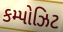
કમ્પોઝિટ